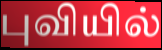
புவியில்